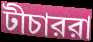
টীচাররা